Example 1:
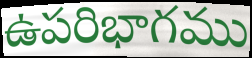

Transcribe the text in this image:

ఉపరిభాగము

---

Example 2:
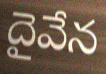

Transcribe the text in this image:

దైవేన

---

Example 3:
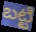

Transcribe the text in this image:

బట్టి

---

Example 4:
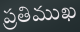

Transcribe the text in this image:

ప్రతిముఖ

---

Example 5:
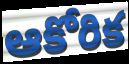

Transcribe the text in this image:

ఆకోరిక